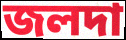
জলদা